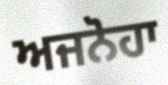
ਅਜਨੋਹਾ